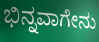
ಭಿನ್ನವಾಗೇನು